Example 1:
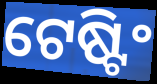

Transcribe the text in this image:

ଟେଷ୍ଟିଂ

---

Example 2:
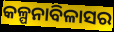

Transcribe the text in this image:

କଳ୍ପନାବିଳାସର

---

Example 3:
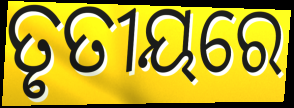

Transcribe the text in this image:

ତୃତୀୟରେ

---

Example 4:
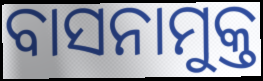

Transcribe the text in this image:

ବାସନାମୁକ୍ତ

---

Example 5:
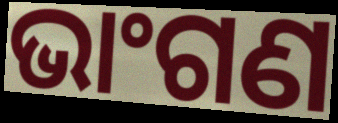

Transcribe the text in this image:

ଭାଂଗଣ